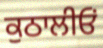
ਕੁਠਾਲੀਓਂ